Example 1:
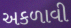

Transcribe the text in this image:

અકળાવી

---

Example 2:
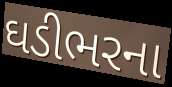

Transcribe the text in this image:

ઘડીભરના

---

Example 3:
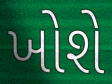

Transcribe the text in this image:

ખોશે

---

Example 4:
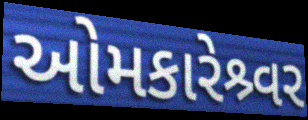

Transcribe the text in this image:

ઓમકારેશ્ર્વર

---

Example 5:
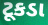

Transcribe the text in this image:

ટૂકડા